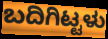
ಬದಿಗಿಟ್ಟಳು